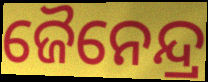
ଜୈନେନ୍ଦ୍ର